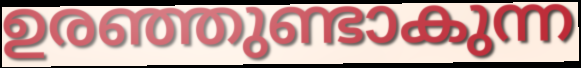
ഉരഞ്ഞുണ്ടാകുന്ന